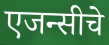
एजन्सीचे